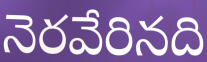
నెరవేరినది